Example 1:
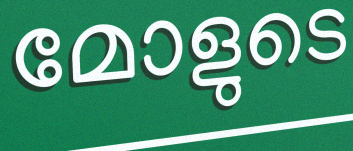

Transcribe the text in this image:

മോളുടെ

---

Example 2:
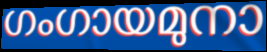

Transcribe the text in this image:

ഗംഗായമുനാ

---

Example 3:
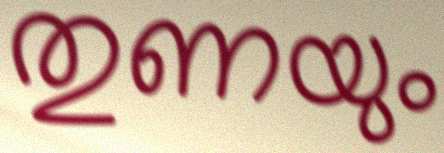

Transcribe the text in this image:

തുണയും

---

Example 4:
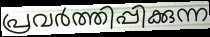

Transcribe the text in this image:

പ്രവർത്തിപ്പിക്കുന്ന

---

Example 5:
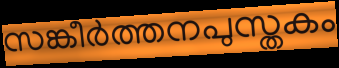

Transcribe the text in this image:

സങ്കീർത്തനപുസ്തകം